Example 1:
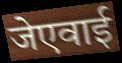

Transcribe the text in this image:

जेएवाई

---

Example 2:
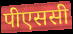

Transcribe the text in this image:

पीएससी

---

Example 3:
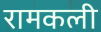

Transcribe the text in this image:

रामकली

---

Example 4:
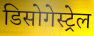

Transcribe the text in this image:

डिसोगेस्ट्रेल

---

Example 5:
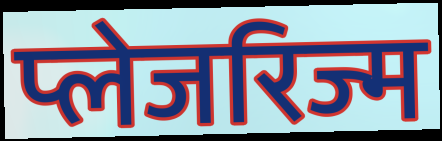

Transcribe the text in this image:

प्लेजरिज्म